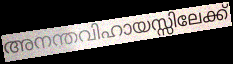
അനന്തവിഹായസ്സിലേക്ക്